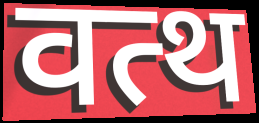
वत्थ